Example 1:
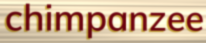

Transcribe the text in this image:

chimpanzee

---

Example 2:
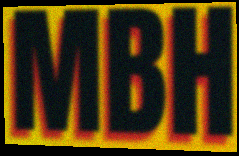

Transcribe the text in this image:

MBH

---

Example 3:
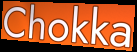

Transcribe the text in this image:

Chokka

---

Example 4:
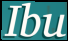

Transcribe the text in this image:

Ibu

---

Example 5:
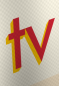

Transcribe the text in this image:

tv